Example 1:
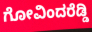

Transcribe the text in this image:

ಗೋವಿಂದರೆಡ್ಡಿ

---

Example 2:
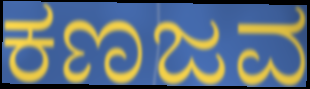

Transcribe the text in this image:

ಕಣಜವ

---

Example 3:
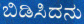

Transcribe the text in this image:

ಬಿಡಿಸಿದನು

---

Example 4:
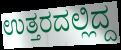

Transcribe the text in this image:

ಉತ್ತರದಲ್ಲಿದ್ದ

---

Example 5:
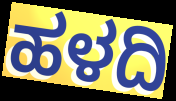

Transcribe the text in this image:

ಹಳದಿ